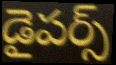
డైపర్స్